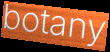
botany